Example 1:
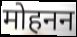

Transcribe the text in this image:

मोहनन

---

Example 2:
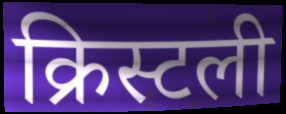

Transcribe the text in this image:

क्रिस्टली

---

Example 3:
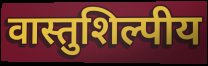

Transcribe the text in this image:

वास्तुशिल्पीय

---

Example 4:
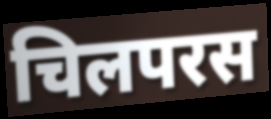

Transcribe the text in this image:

चिलपरस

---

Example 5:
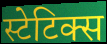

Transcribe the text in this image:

स्टेटिक्स